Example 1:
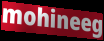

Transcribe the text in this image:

mohineeg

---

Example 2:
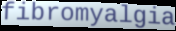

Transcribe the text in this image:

fibromyalgia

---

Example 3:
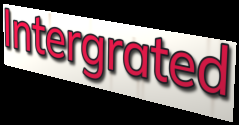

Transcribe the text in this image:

Intergrated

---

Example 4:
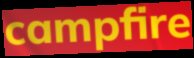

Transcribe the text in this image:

campfire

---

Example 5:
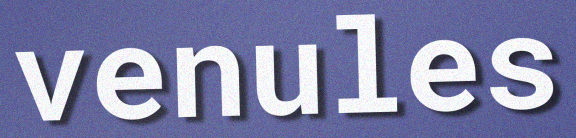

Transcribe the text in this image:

venules